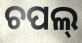
ଚପଲ୍